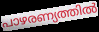
പാഴരണ്യത്തിൽ